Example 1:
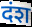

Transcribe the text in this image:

दंश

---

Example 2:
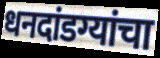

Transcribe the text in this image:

धनदांडग्यांचा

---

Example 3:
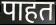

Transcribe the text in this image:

पाहत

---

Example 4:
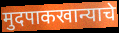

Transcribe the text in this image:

मुदपाकखान्याचे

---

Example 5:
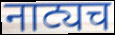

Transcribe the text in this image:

नाट्यच